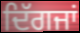
ਦਿੱਗਜਾਂ